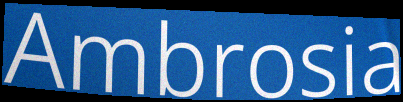
Ambrosia